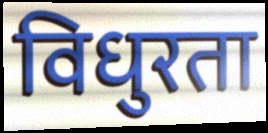
विधुरता